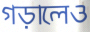
গড়ালেও